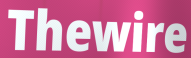
Thewire